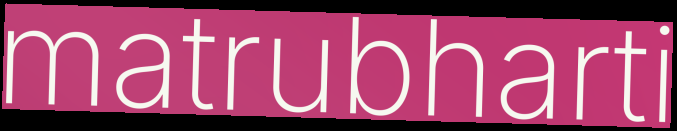
matrubharti